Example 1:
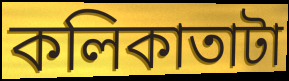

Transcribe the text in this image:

কলিকাতাটা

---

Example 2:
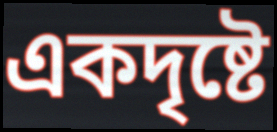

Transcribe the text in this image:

একদৃষ্টে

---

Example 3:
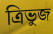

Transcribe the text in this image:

ত্রিভুজ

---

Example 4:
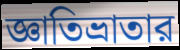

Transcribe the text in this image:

জ্ঞাতিভ্রাতার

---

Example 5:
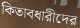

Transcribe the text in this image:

কিতাবধারীদের